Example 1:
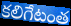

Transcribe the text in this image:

కలిగేటంత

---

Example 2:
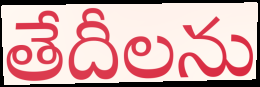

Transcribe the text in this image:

తేదీలను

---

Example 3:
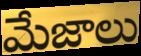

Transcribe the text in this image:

మేజాలు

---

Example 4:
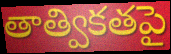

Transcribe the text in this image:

తాత్వికతపై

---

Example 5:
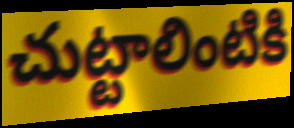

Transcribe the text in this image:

చుట్టాలింటికి